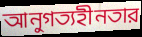
আনুগত্যহীনতার